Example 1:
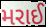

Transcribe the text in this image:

મરાઈ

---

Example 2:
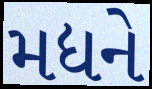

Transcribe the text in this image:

મદ્યને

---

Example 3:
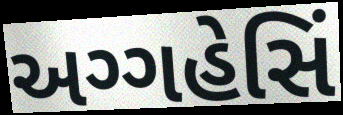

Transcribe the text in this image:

અગ્ગહેસિં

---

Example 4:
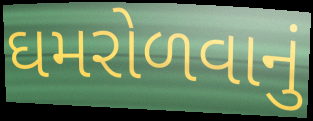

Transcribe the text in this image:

ઘમરોળવાનું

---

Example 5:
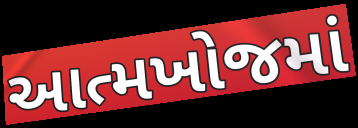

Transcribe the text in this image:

આત્મખોજમાં